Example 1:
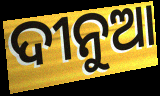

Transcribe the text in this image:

ଦୀନୁଆ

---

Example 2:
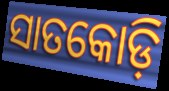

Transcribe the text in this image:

ସାତକୋଡ଼ି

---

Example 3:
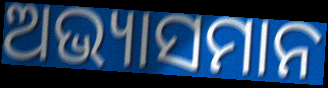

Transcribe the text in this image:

ଅଭ୍ୟାସମାନ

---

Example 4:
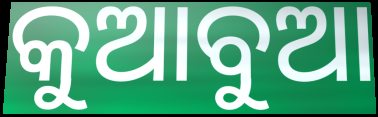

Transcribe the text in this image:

କୁଆବୁଆ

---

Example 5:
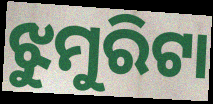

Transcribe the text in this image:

ଝୁମୁରିଟା